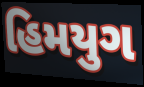
હિમયુગ